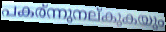
പകര്ന്നുനല്കുകയും